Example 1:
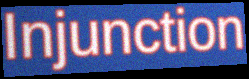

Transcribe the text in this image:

Injunction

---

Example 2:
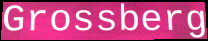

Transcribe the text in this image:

Grossberg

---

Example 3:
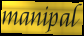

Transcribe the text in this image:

manipal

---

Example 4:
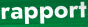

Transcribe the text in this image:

rapport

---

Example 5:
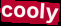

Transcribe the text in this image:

cooly